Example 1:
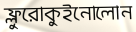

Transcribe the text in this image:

ফ্লুরোকুইনোলোন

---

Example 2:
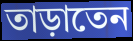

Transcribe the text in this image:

তাড়াতেন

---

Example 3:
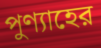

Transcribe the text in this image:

পুণ্যাহের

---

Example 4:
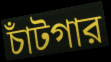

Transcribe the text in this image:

চাঁটগার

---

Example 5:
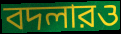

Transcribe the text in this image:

বদলারও